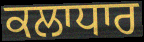
ਕਲਾਧਾਰ